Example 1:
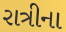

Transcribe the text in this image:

રાત્રીના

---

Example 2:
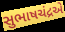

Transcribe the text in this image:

સુભાષચંદ્રએ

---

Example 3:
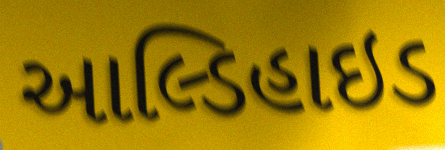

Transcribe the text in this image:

આલ્ડિહાઇડ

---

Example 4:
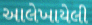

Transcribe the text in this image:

આલેખાયેલી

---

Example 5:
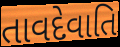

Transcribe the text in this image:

તાવદેવાતિ